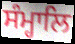
ਸੰਮ੍ਹ੍ਹਾਲਿ